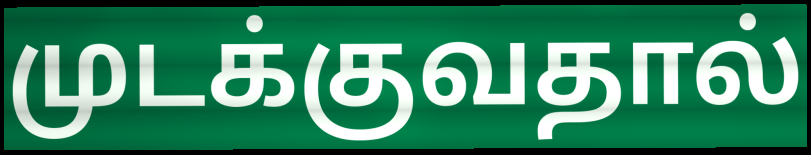
முடக்குவதால்